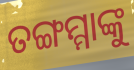
ତଙ୍ଗମ୍ମାଙ୍କୁ